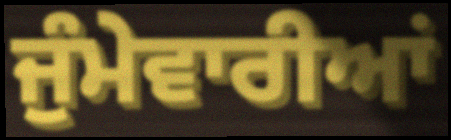
ਜੁੰਮੇਵਾਰੀਆਂ